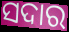
ସଦାର